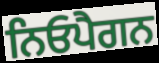
ਨਿਓਪੈਗਨ